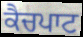
ਕੈਚਪਾਟ